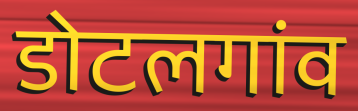
डोटलगांव